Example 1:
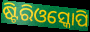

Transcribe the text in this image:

ଷ୍ଟିରିଓସ୍କୋପି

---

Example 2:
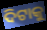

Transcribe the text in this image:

ଦିଟାକୁ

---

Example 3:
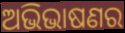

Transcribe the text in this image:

ଅଭିଭାଷଣର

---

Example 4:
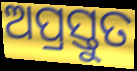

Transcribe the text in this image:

ଅପ୍ରସ୍ତୁତ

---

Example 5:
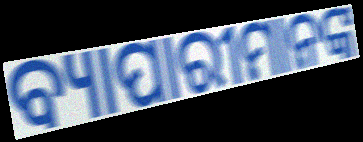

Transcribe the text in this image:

ବ୍ୟାପାରୀମାନଙ୍କ